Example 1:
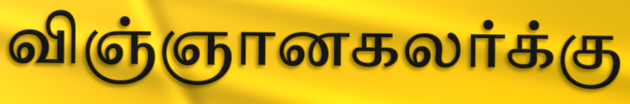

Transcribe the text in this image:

விஞ்ஞானகலர்க்கு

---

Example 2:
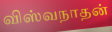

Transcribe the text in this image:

விஸ்வநாதன்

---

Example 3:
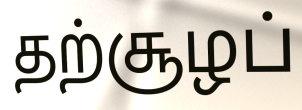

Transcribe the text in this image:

தற்சூழப்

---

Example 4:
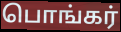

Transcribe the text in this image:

பொங்கர்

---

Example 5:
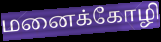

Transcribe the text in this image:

மனைக்கோழி